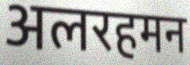
अलरहमन